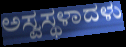
ಅಸ್ವಸ್ಥಳಾದಳು